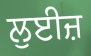
ਲੁਈਜ਼